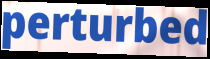
perturbed